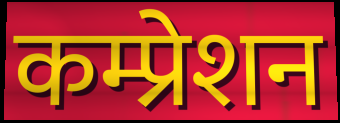
कम्प्रेशन